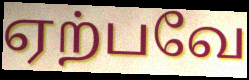
ஏற்பவே